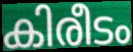
കിരീടം